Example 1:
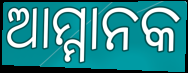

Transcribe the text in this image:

ଆମ୍ମାନକ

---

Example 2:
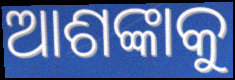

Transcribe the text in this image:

ଆଶଙ୍କାକୁ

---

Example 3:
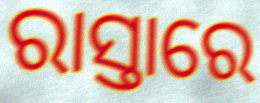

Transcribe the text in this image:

ରାସ୍ତାରେ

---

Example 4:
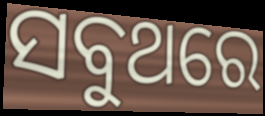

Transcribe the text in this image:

ସବୁଥରେ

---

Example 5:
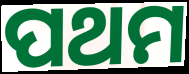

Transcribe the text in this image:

ପଥମ